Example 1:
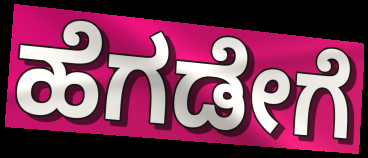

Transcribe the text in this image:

ಹೆಗಡೇಗೆ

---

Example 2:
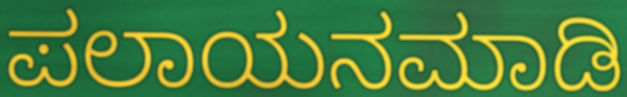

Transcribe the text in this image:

ಪಲಾಯನಮಾಡಿ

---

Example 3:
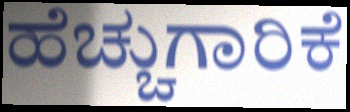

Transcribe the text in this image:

ಹೆಚ್ಚುಗಾರಿಕೆ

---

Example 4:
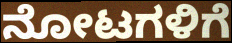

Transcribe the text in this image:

ನೋಟಗಳಿಗೆ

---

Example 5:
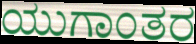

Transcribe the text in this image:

ಯುಗಾಂತರ